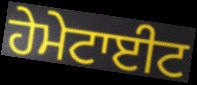
ਹੇਮੇਟਾਈਟ